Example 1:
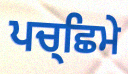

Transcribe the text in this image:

ਪਚ੍ਛਿਮੇ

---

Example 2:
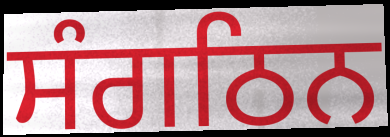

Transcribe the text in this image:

ਸੰਗਠਿਨ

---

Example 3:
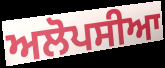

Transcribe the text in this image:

ਅਲੋਪਸੀਆ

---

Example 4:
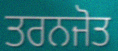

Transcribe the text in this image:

ਤਰਨਜੋਤ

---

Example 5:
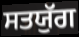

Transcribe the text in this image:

ਸਤਯੁੱਗ